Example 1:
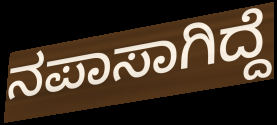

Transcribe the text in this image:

ನಪಾಸಾಗಿದ್ದೆ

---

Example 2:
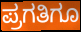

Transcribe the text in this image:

ಪ್ರಗತಿಗೂ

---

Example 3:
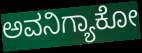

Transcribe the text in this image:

ಅವನಿಗ್ಯಾಕೋ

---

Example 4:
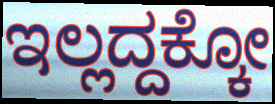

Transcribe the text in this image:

ಇಲ್ಲದ್ದಕ್ಕೋ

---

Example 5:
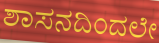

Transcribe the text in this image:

ಶಾಸನದಿಂದಲೇ